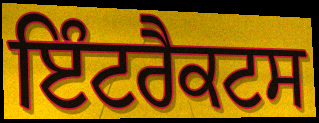
ਇੰਟਰੈਕਟਸ